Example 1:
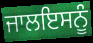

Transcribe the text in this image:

ਜਾਲਇਸਨੂੰ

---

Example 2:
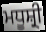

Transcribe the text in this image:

ਮਧੂਸ਼੍ਰੀ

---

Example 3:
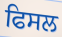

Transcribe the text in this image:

ਫਿਸਲ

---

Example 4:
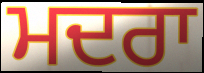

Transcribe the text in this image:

ਮਦਰਾ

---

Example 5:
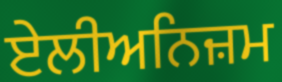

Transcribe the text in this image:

ਏਲੀਅਨਿਜ਼ਮ